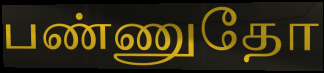
பண்ணுதோ